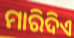
ମାରିଦିଏ